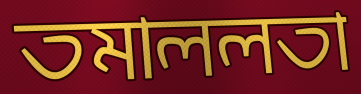
তমাললতা